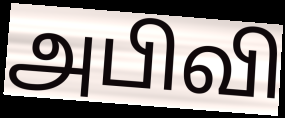
அபிவி